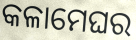
କଳାମେଘର